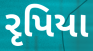
રૃપિયા